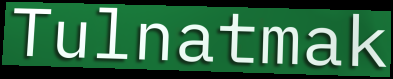
Tulnatmak